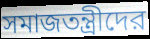
সমাজতন্ত্রীদের